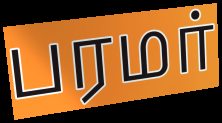
பரமர்